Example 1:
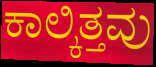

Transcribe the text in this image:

ಕಾಲ್ಕಿತ್ತವು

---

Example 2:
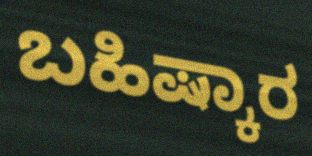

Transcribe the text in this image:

ಬಹಿಷ್ಕಾರ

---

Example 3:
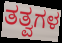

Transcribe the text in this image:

ತತ್ವಗಳ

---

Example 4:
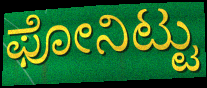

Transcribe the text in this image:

ಫೋನಿಟ್ಟು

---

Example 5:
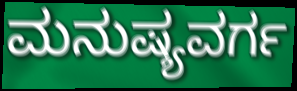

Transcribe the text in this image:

ಮನುಷ್ಯವರ್ಗ